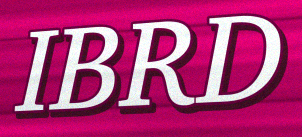
IBRD